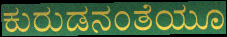
ಕುರುಡನಂತೆಯೂ